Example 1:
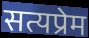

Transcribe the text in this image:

सत्यप्रेम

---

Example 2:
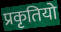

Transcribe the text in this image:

प्रकृतियो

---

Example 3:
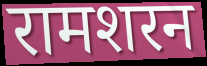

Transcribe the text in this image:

रामशरन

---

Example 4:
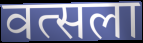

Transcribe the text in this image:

वत्सला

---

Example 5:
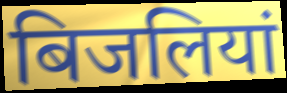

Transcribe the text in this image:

बिजलियां